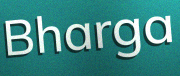
Bharga